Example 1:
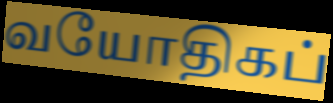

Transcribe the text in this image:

வயோதிகப்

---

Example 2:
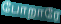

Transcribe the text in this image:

போறாரே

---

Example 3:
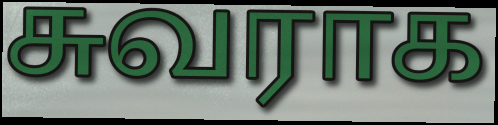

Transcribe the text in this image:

சுவராக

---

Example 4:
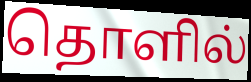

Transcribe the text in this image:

தொளில்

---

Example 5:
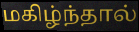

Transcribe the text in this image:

மகிழ்ந்தால்